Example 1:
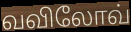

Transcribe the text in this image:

வவிலோவ்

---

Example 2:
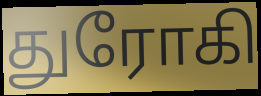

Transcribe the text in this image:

துரோகி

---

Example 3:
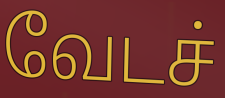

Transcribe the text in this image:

வேடச்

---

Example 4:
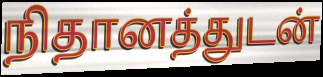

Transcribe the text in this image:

நிதானத்துடன்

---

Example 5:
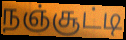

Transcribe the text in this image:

நஞ்சூட்டி